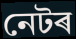
নেটৰ